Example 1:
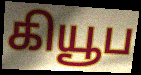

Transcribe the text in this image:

கியூப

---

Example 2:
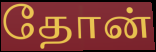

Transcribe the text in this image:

தோன்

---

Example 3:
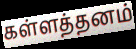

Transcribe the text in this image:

கள்ளத்தனம்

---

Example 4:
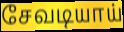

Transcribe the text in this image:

சேவடியாய்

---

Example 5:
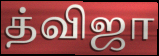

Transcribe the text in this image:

த்விஜா